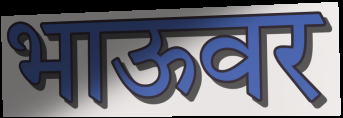
भाऊवर